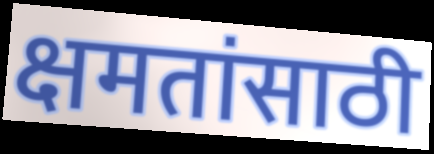
क्षमतांसाठी